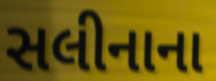
સલીનાના